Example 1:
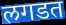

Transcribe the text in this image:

लगडत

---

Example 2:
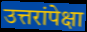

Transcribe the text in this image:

उत्तरांपेक्षा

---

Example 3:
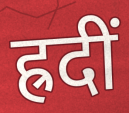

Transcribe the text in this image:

ह्रदीं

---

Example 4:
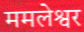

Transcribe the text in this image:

ममलेश्वर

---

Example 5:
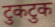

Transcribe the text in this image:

टुकटुक